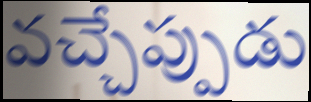
వచ్చేప్పుడు